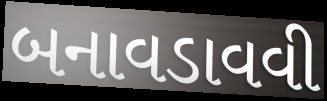
બનાવડાવવી